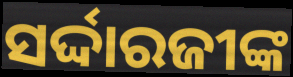
ସର୍ଦ୍ଦାରଜୀଙ୍କ